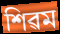
শিৱম